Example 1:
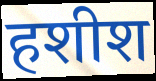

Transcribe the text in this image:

हशीश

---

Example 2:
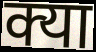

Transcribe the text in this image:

क्‍या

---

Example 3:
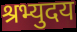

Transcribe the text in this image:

श्रभ्युदय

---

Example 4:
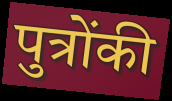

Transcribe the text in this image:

पुत्रोंकी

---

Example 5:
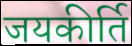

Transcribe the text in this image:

जयकीर्ति